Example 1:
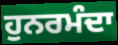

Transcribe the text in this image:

ਹੁਨਰਮੰਦਾ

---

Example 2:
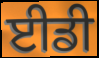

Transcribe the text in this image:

ਈਡੀ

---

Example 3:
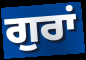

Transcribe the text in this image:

ਗੁਰਾਂ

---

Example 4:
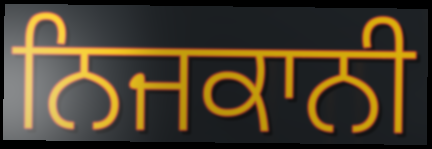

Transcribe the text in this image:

ਨਿਜਕਾਨੀ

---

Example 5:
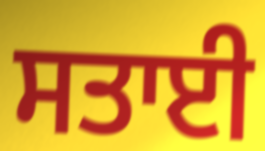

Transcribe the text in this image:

ਸਤਾਈ